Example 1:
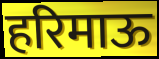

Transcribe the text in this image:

हरिमाऊ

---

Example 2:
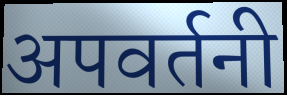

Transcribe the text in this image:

अपवर्तनी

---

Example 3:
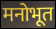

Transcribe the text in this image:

मनोभूत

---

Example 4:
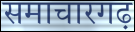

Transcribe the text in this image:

समाचारगढ़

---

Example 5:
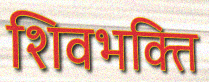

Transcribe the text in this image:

शिवभक्ति